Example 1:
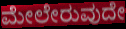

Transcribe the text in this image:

ಮೇಲೇರುವುದೇ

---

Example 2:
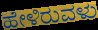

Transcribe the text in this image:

ಹೇಳಿರುವಳು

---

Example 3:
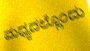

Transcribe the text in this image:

ಮಧ್ಯದಲ್ಲೊಂದು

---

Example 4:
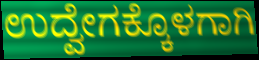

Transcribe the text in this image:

ಉದ್ವೇಗಕ್ಕೊಳಗಾಗಿ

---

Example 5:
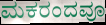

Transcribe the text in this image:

ಮಕರಂದವೂ